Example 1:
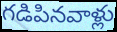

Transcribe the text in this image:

గడిపినవాళ్లు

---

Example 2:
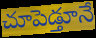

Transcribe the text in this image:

చూపెడ్తూనే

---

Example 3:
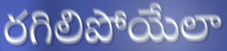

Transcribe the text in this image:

రగిలిపోయేలా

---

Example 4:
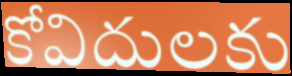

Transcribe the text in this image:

కోవిదులకు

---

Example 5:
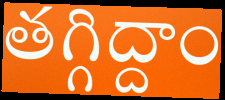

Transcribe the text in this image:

తగ్గిద్దాం